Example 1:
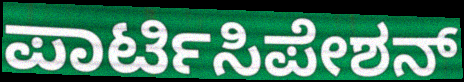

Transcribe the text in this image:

ಪಾರ್ಟಿಸಿಪೇಶನ್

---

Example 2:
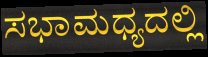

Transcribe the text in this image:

ಸಭಾಮಧ್ಯದಲ್ಲಿ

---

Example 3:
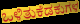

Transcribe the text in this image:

ಒಳಿತುಕೆಡಕುಗಳ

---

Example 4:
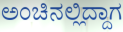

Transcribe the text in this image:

ಅಂಚಿನಲ್ಲಿದ್ದಾಗ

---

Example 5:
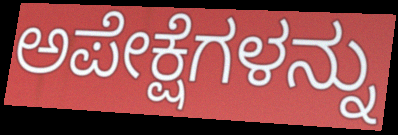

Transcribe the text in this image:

ಅಪೇಕ್ಷೆಗಳನ್ನು